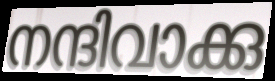
നന്ദിവാക്കു